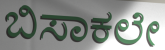
ಬಿಸಾಕಲೇ